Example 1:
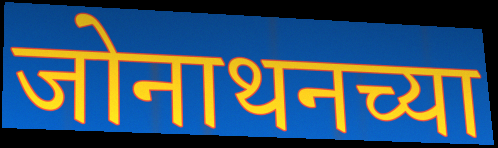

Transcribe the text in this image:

जोनाथनच्या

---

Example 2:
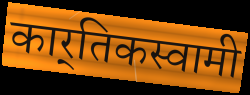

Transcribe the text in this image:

कार्तिकस्वामी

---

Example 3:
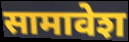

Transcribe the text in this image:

सामावेश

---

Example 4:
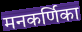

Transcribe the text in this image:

मनकर्णिका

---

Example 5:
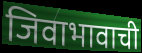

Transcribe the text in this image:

जिवाभावाची